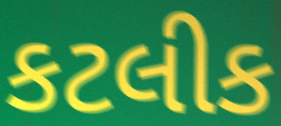
કટલીક